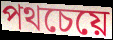
পথচেয়ে